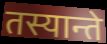
तस्यान्ते